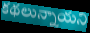
కథలున్నాయని